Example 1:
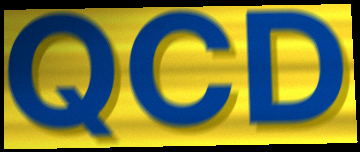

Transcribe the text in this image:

QCD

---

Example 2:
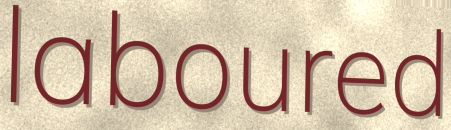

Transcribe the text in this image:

laboured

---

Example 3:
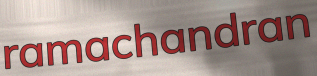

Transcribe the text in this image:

ramachandran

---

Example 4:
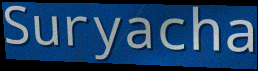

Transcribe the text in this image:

Suryacha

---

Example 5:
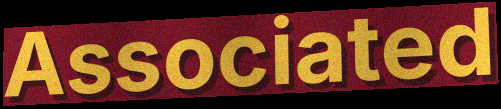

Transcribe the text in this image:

Associated